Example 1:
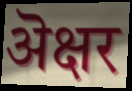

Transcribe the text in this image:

ऄक्षर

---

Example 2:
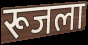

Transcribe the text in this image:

रूजला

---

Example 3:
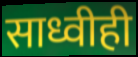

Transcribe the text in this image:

साध्वीही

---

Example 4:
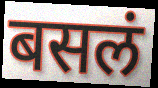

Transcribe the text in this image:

बसलं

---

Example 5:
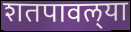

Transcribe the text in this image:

शतपावल्या